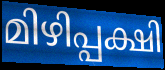
മിഴിപ്പക്ഷി